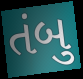
તંબુ